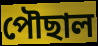
পৌছাল